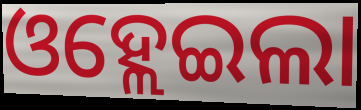
ଓହ୍ଲେଇଲା